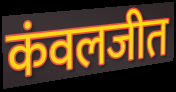
कंवलजीत